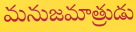
మనుజమాత్రుడు